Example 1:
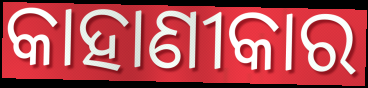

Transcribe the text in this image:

କାହାଣୀକାର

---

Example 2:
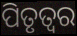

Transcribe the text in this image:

ପିତୃତ୍ୱର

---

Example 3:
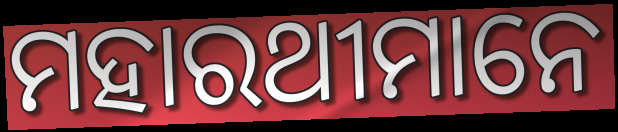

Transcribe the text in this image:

ମହାରଥୀମାନେ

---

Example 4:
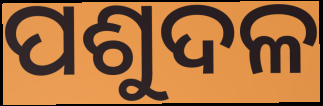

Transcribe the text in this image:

ପଶୁଦଳ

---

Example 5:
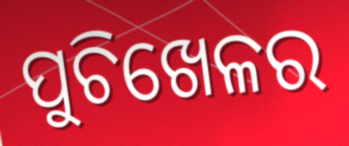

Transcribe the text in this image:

ପୁଚିଖେଳର